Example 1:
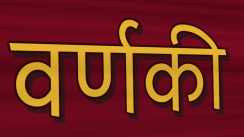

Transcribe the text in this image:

वर्णकी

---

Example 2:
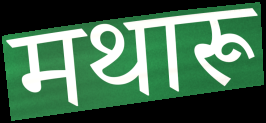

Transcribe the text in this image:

मथारू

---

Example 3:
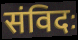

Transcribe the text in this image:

संविदः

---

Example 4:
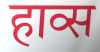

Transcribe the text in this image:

हाव्स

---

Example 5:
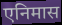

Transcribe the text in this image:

एनिमास